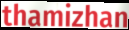
thamizhan